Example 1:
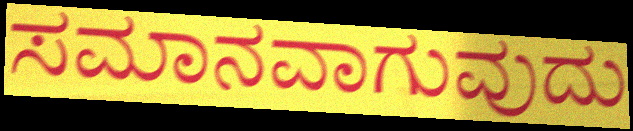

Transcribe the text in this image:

ಸಮಾನವಾಗುವುದು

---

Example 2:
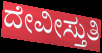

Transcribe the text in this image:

ದೇವೀಸ್ತುತಿ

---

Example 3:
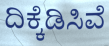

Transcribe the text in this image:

ದಿಕ್ಕೆಡಿಸಿವೆ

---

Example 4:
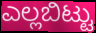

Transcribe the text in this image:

ಎಲ್ಲಬಿಟ್ಟು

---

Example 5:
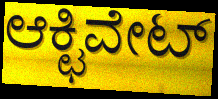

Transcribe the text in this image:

ಆಕ್ಟಿವೇಟ್